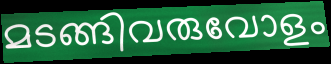
മടങ്ങിവരുവോളം